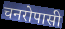
चनरोपासी